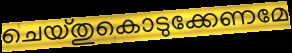
ചെയ്തുകൊടുക്കേണമേ